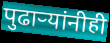
पुढाऱ्यांनीही